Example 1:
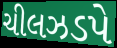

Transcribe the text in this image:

ચીલઝડપે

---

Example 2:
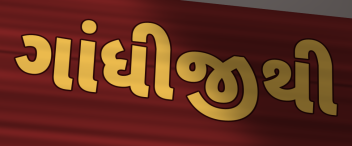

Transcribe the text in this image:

ગાંધીજીથી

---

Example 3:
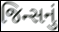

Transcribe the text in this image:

જિન્સનું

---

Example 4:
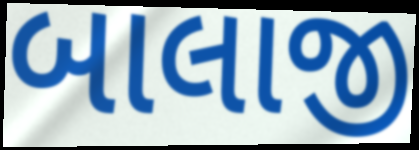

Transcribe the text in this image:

બાલાજી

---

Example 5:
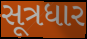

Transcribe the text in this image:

સૂત્રધાર